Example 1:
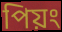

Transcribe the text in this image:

পিয়ং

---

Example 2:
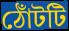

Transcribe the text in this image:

ঠোঁটটি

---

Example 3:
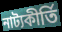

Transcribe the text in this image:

নাট্যকীর্তি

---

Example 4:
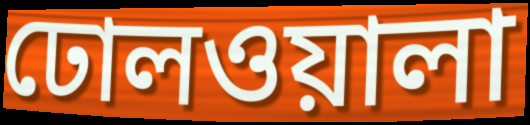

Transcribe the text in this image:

ঢোলওয়ালা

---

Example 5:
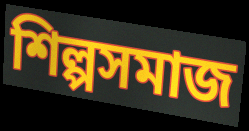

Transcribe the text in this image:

শিল্পসমাজ